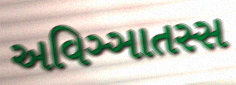
અવિઞ્ઞાતસ્સ